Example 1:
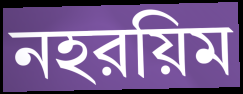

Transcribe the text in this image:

নহরয়িম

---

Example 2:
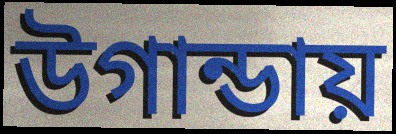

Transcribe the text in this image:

উগান্ডায়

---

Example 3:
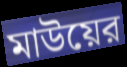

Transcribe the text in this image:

মাউয়ের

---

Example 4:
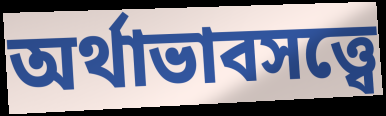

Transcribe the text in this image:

অর্থাভাবসত্ত্বে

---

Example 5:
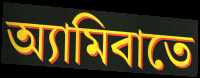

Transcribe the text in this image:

অ্যামিবাতে